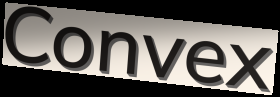
Convex